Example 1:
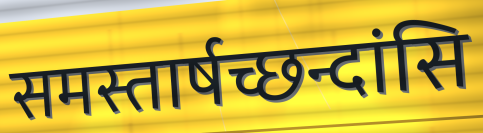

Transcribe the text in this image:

समस्तार्षच्छन्दांसि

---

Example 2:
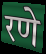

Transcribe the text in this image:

रणे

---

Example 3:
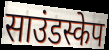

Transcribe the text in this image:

साउंडस्केप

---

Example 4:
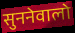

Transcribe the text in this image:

सुननेवालो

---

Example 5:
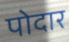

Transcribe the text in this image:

पोदार